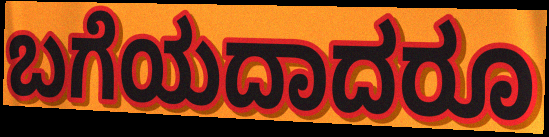
ಬಗೆಯದಾದರೂ